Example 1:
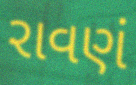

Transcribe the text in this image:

રાવણં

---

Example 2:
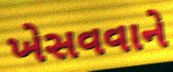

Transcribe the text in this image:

ખેસવવાને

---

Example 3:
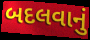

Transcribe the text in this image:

બદલવાનું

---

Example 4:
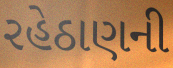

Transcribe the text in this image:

રહેઠાણની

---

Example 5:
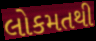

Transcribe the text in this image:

લોકમતથી